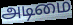
அடிமை